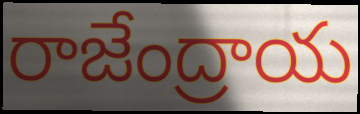
రాజేంద్రాయ